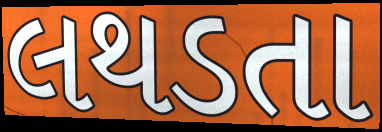
લથડતા